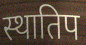
स्थातिप